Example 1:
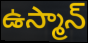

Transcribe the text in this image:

ఉస్మాన్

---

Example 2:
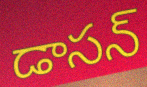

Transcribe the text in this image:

డాసన్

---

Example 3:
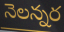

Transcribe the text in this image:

నెలన్నర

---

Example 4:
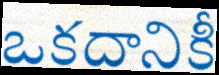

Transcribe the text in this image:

ఒకదానికీ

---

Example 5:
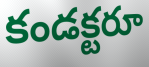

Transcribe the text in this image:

కండక్టరూ